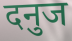
दनुज